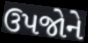
ઉપજોને